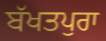
ਬੱਖਤਪੁਰਾ